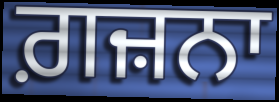
ਗ਼ਜ਼ਨਾ